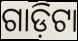
ଗାଡ଼ିଟା